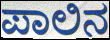
ಪಾಲಿನ